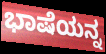
ಭಾಷೆಯನ್ನ